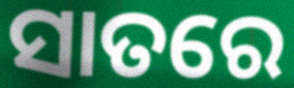
ସାତରେ